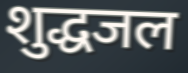
शुद्धजल